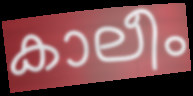
കാലീം